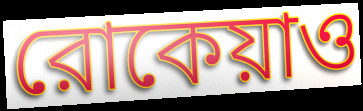
রোকেয়াও